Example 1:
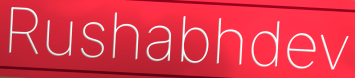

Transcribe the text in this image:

Rushabhdev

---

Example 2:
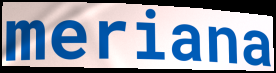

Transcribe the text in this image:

meriana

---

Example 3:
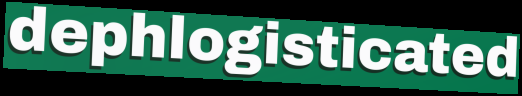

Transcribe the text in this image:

dephlogisticated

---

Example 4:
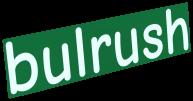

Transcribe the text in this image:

bulrush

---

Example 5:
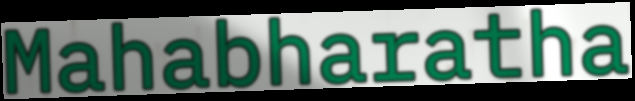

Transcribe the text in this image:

Mahabharatha